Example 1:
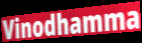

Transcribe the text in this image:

Vinodhamma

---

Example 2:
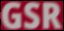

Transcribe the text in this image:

GSR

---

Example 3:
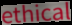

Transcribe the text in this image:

ethical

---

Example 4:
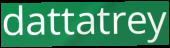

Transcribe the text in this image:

dattatrey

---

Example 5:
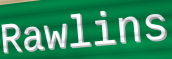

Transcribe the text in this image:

Rawlins